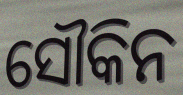
ସୌକିନ